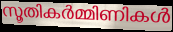
സൂതികർമ്മിണികൾ